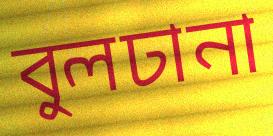
বুলঢানা